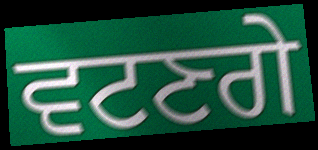
ਵਟਣਗੇ